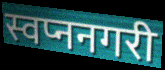
स्वप्ननगरी